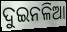
ଦୁଇନଳିଆ